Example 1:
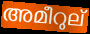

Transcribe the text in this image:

അമീറുല്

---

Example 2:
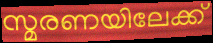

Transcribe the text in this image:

സ്മരണയിലേക്ക്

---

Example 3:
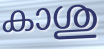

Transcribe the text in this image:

കാശു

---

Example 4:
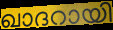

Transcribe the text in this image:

ഖാദറായി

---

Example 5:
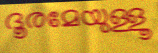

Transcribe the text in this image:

ദൂരമേയുള്ളൂ